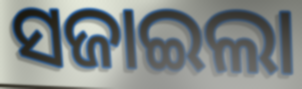
ସଜାଇଲା